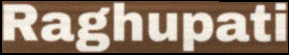
Raghupati